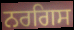
ਨਰਗਿਸ